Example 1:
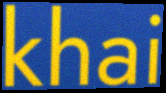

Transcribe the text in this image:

khai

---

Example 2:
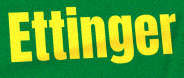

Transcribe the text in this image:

Ettinger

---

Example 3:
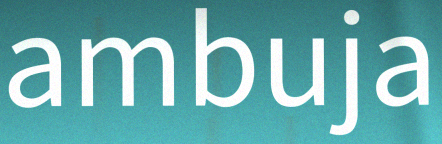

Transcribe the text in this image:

ambuja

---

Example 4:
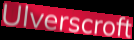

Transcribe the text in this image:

Ulverscroft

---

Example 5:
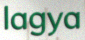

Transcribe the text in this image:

lagya